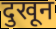
दुखून